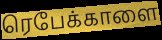
ரெபேக்காளை